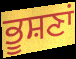
ਭੂਸ਼ਣਾਂ